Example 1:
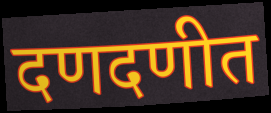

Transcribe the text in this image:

दणदणीत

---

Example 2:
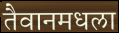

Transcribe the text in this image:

तैवानमधला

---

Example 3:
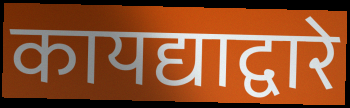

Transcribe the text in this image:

कायद्याद्वारे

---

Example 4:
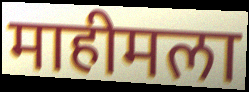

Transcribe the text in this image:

माहीमला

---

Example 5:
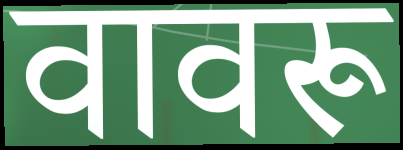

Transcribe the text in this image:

वावरू